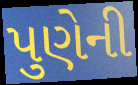
પુણેની